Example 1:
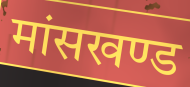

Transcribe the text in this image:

मांसखण्ड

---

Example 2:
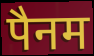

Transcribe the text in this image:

पैनम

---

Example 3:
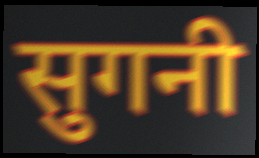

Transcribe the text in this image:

सुगनी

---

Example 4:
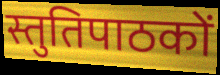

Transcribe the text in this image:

स्तुतिपाठकों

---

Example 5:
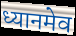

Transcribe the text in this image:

ध्यानमेव